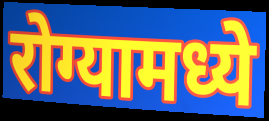
रोग्यामध्ये